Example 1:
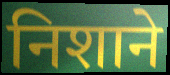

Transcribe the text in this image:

निशाने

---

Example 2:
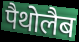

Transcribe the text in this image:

पैथोलैब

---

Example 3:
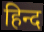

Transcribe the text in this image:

हिन्द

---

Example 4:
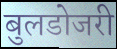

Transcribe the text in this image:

बुलडोजरी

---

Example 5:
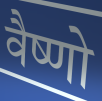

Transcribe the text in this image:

वैष्‍णो